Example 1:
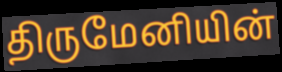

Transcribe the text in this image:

திருமேனியின்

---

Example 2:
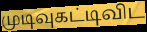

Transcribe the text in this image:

முடிவுகட்டிவிட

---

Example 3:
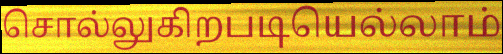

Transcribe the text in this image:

சொல்லுகிறபடியெல்லாம்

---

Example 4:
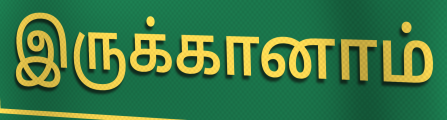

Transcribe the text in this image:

இருக்கானாம்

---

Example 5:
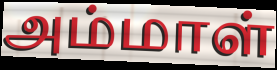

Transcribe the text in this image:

அம்மாள்